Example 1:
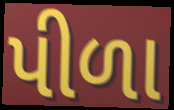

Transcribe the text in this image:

પીળા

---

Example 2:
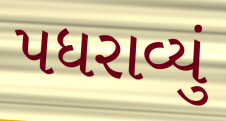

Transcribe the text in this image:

પધરાવ્યું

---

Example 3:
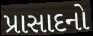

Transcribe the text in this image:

પ્રાસાદનો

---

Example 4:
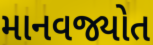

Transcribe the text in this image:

માનવજ્યોત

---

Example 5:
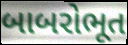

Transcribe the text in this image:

બાબરોભૂત